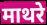
माथरे